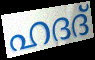
ഹദദ്